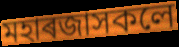
মহাৰজাসকলে